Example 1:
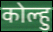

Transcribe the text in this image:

कोल्हु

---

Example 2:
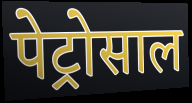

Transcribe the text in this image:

पेट्रोसाल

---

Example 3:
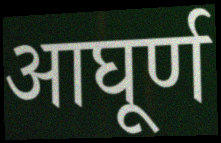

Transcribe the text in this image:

आघूर्ण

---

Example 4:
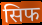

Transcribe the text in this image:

सिफ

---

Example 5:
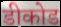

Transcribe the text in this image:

डीकोड